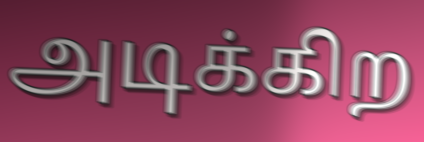
அடிக்கிற